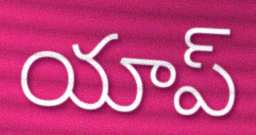
యాప్